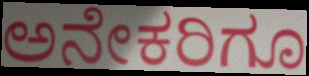
ಅನೇಕರಿಗೂ